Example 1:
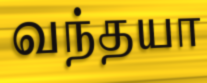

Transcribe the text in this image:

வந்தயா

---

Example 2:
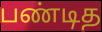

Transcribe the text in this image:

பண்டித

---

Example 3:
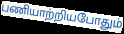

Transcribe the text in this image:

பணியாற்றியபோதும்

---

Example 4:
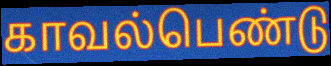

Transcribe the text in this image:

காவல்பெண்டு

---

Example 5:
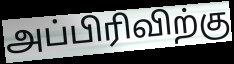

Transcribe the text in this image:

அப்பிரிவிற்கு